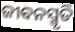
ଜୀବନସ୍ମୃତି